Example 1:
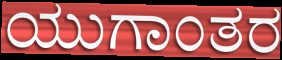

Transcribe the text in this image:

ಯುಗಾಂತರ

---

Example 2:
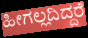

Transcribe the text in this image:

ಹೀಗಲ್ಲದಿದ್ದರೆ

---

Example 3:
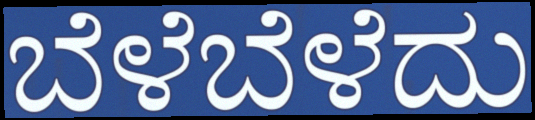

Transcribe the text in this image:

ಬೆಳೆಬೆಳೆದು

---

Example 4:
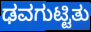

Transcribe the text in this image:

ಢವಗುಟ್ಟಿತು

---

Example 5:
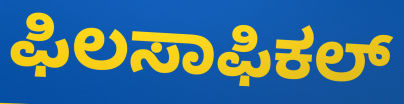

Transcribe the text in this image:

ಫಿಲಸಾಫಿಕಲ್